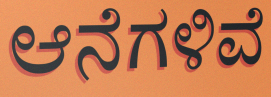
ಆನೆಗಳಿವೆ